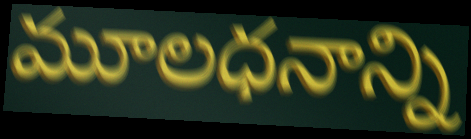
మూలధనాన్ని